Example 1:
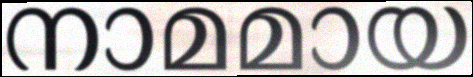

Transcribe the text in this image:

നാമമായ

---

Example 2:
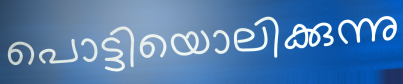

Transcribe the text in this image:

പൊട്ടിയൊലിക്കുന്നു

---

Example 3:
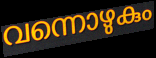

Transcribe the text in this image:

വന്നൊഴുകും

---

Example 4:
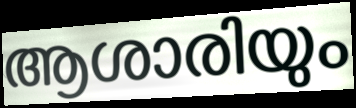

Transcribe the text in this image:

ആശാരിയും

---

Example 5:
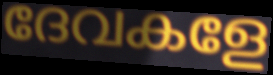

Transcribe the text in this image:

ദേവകളേ